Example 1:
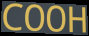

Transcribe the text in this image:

COOH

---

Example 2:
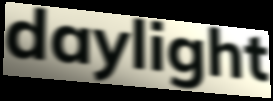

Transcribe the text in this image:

daylight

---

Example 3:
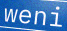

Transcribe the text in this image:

weni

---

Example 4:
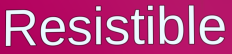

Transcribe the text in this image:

Resistible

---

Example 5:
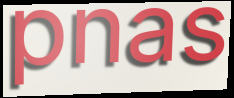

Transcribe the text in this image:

pnas